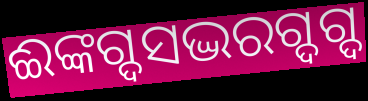
ଈଙ୍କଗ୍ଦସଦ୍ଭରଗ୍ଦଗ୍ଦ